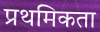
प्रथमिकता